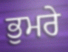
ਭੁਮਰੇ